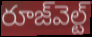
రూజ్‌వెల్ట్